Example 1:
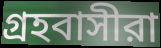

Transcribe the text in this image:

গ্রহবাসীরা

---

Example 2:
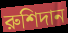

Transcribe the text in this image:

রুশিদান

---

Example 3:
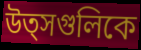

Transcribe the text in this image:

উত্সগুলিকে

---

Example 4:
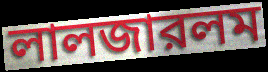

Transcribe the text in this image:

লালজারলম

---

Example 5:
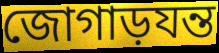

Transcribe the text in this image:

জোগাড়যন্ত